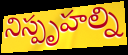
నిస్పృహల్ని